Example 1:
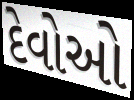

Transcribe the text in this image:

દેવોઓ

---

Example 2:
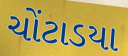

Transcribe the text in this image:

ચોંટાડયા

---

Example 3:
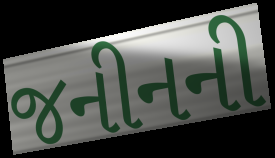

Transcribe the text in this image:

જનીનની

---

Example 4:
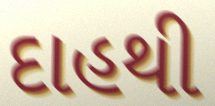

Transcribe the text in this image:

દાહથી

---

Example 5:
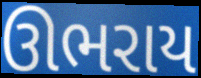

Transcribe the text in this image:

ઊભરાય